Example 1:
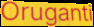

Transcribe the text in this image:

Oruganti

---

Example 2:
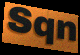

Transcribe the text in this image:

Sqn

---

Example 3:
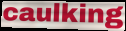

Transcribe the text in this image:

caulking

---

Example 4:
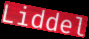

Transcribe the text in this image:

Liddel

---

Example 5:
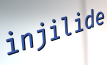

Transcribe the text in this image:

injilide